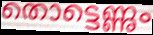
തൊട്ടെണ്ണും